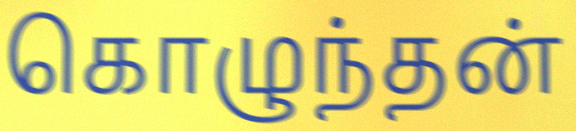
கொழுந்தன்